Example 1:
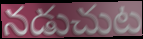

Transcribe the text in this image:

నడుచుట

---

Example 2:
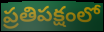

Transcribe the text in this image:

ప్రతిపక్షంలో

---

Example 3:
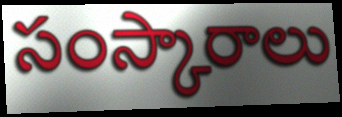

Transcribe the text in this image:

సంస్కారాలు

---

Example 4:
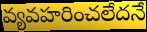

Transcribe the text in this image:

వ్యవహరించలేదనే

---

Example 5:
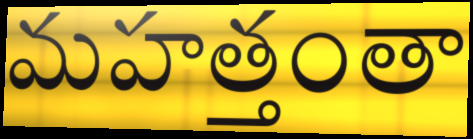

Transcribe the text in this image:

మహత్తంతా